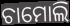
ଚାମୋଲି